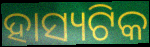
ହାସ୍ୟଟିକ